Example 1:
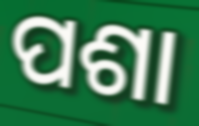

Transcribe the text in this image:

ପଶା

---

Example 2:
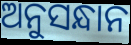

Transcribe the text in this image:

ଅନୁସନ୍ଧାନ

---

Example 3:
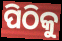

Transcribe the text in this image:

ପିଠିକୁ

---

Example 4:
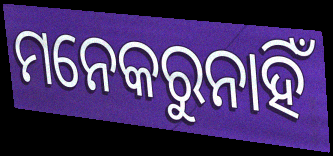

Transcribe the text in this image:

ମନେକରୁନାହିଁ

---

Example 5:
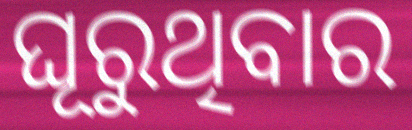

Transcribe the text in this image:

ଘୂରୁଥିବାର